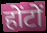
होंटों